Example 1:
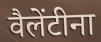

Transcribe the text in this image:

वैलेंटीना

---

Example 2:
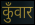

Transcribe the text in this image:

कुँवार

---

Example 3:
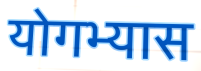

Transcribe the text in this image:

योगभ्यास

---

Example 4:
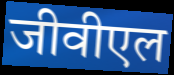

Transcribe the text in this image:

जीवीएल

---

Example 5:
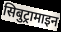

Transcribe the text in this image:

सिबुट्रामाइन